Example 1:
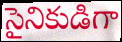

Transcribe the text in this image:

సైనికుడిగా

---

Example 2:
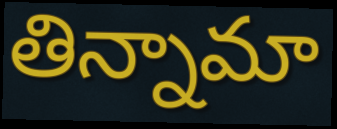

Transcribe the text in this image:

తిన్నామా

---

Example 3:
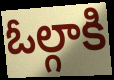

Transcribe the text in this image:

ఓల్గాకి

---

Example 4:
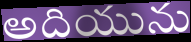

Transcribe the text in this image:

అదియును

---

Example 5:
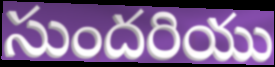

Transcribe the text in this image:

సుందరియు